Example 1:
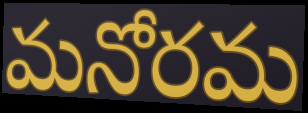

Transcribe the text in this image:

మనోరమ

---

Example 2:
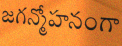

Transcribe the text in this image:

జగన్మోహనంగా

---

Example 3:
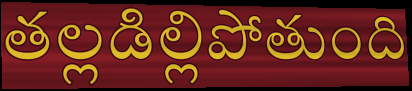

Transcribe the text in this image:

తల్లడిల్లిపోతుంది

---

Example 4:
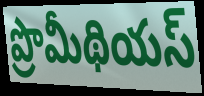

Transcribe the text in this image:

ప్రొమీథియస్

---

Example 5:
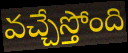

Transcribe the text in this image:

వచ్చేస్తోంది